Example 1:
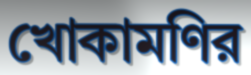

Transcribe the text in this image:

খোকামণির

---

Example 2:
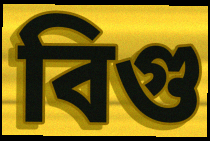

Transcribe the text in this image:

বিগু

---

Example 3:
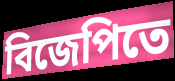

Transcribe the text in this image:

বিজেপিতে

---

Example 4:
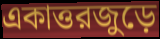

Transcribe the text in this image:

একাত্তরজুড়ে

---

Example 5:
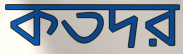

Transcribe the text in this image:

কতদর